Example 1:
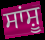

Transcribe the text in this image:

ਸਾਂਸ਼ੂ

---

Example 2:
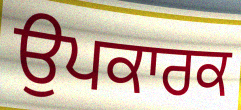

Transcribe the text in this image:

ਉਪਕਾਰਕ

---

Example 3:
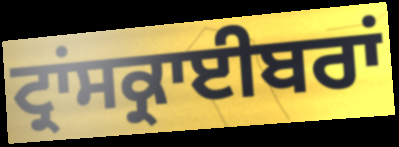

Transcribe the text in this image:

ਟ੍ਰਾਂਸਕ੍ਰਾਈਬਰਾਂ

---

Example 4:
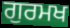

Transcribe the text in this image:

ਗੁਰਮਖ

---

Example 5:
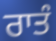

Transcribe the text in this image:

ਰਾਤੰ